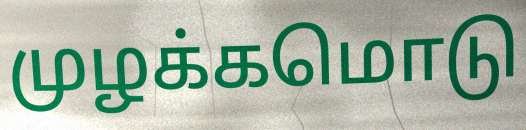
முழக்கமொடு